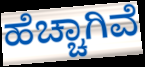
ಹೆಚ್ಚಾಗಿವೆ